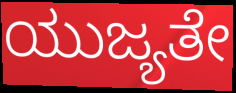
ಯುಜ್ಯತೇ